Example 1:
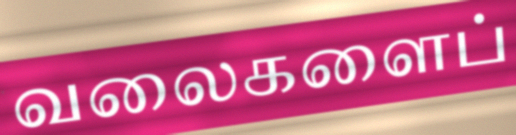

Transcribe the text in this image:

வலைகளைப்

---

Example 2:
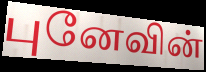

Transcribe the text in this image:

புனேவின்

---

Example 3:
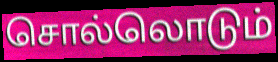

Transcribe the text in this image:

சொல்லொடும்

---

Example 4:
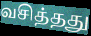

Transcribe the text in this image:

வசித்தது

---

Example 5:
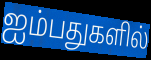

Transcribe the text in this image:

ஐம்பதுகளில்